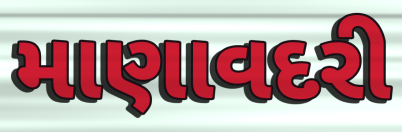
માણાવદરી